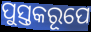
ପୁସ୍ତକରୂପେ